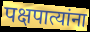
पक्षपात्यांना